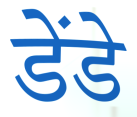
डेंडे